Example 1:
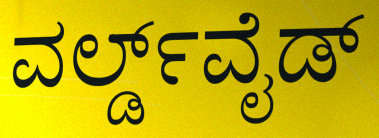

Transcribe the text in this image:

ವರ್ಲ್ಡ್‌ವೈಡ್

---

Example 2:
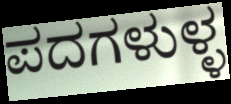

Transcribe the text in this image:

ಪದಗಳುಳ್ಳ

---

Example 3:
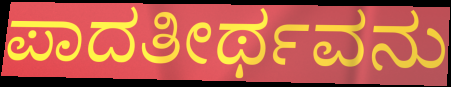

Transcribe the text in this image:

ಪಾದತೀರ್ಥವನು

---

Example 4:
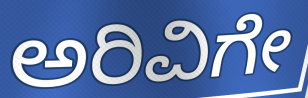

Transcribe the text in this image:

ಅರಿವಿಗೇ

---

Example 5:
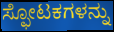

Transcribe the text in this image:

ಸ್ಫೋಟಕಗಳನ್ನು